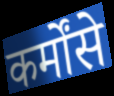
कर्मोंसे